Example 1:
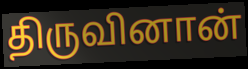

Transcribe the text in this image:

திருவினான்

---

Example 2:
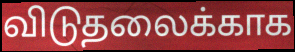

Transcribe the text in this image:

விடுதலைக்காக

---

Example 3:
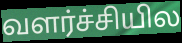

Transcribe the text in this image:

வளர்ச்சியில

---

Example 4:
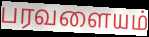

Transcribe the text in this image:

பரவளையம்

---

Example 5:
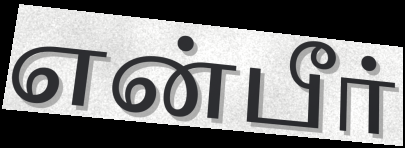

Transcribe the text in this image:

என்பீர்